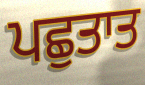
ਪਛੁਤਾਤ